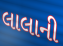
લાલાની